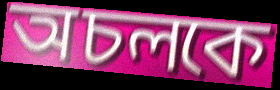
অচলকে